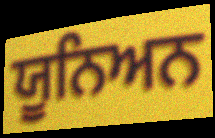
ਯੂਨਿਅਨ